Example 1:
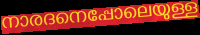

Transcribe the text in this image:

നാരദനെപ്പോലെയുള്ള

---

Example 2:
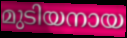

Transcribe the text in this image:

മുടിയനായ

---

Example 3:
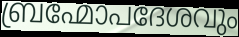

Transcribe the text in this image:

ബ്രഹ്മോപദേശവും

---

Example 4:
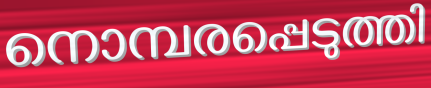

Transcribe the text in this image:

നൊമ്പരപ്പെടുത്തി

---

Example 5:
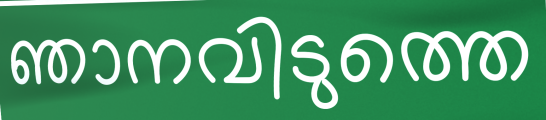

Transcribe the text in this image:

ഞാനവിടുത്തെ